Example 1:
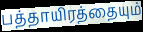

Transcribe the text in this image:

பத்தாயிரத்தையும்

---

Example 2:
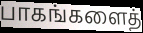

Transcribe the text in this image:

பாகங்களைத்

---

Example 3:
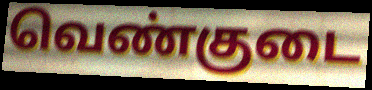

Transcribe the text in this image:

வெண்குடை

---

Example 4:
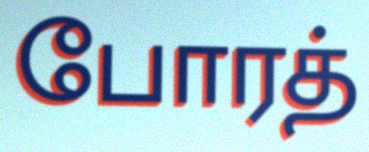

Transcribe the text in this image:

போரத்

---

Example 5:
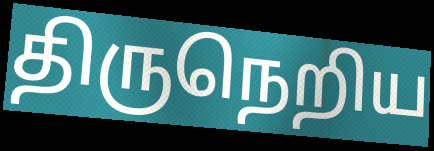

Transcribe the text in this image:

திருநெறிய